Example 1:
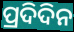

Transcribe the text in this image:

ପ୍ରଦିଦିନ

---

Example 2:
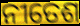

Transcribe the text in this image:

ନୀତେଶ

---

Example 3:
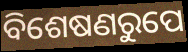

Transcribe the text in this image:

ବିଶେଷଣରୁପେ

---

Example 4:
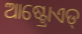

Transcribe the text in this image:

ଆଷ୍ଟ୍ରୋଏଡ୍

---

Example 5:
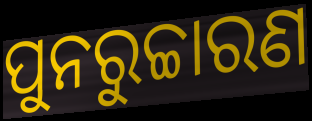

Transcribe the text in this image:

ପୁନରୁଚ୍ଚାରଣ